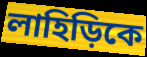
লাহিড়িকে